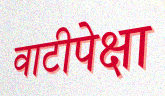
वाटीपेक्षा